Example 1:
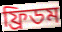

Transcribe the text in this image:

ফ্রিডম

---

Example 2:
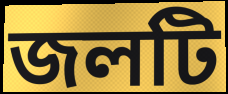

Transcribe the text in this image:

জলটি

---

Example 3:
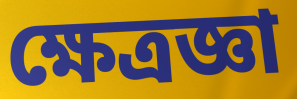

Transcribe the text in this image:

ক্ষেত্রজ্ঞা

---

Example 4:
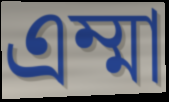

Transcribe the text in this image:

এম্মা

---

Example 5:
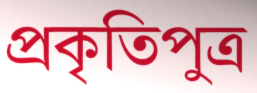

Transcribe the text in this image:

প্রকৃতিপুত্র